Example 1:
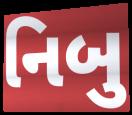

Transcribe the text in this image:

નિબુ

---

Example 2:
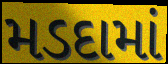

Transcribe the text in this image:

મડદામાં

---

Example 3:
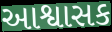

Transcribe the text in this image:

આશ્વાસક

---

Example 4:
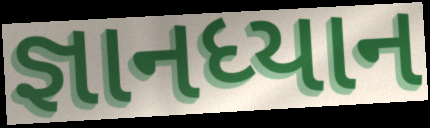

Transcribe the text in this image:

જ્ઞાનધ્યાન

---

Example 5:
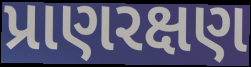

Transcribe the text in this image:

પ્રાણરક્ષણ